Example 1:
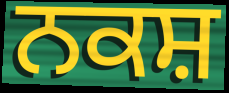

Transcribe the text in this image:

ਨਕਸ਼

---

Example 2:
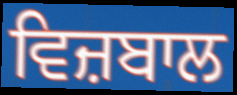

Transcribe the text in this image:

ਵਿਜ਼ਬਾਲ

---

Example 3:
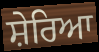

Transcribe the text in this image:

ਸ਼ੇਰਿਆ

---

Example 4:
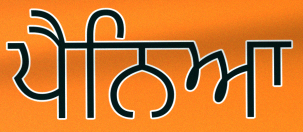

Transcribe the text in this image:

ਪੈਨਿਆ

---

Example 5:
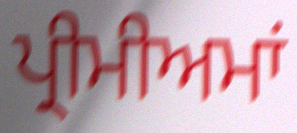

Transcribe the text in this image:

ਪ੍ਰੀਮੀਅਮਾਂ